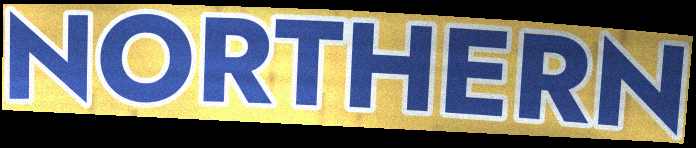
NORTHERN